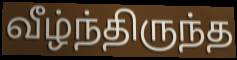
வீழ்ந்திருந்த